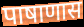
पाषाणास